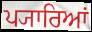
ਪ੍ਯਾਰਿਆਂ